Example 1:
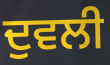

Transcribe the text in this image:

ਦੁਵਲੀ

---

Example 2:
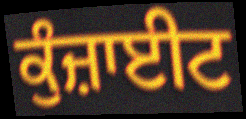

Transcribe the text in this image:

ਕੁੰਜ਼ਾਈਟ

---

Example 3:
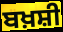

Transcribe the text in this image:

ਬਖ਼ਸ਼ੀ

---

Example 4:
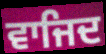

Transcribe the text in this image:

ਵਾਜਿਦ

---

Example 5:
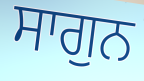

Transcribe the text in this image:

ਸਾਗੁਨ